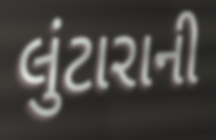
લુંટારાની